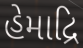
હેમાદ્રિ